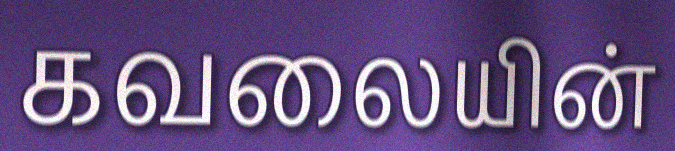
கவலையின்